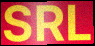
SRL